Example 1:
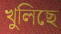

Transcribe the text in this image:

খুলিছে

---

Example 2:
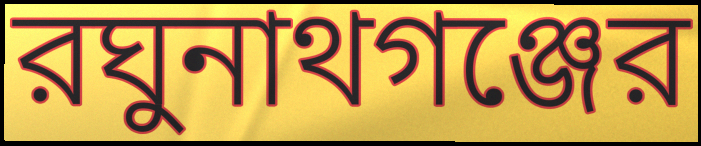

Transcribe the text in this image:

রঘুনাথগঞ্জের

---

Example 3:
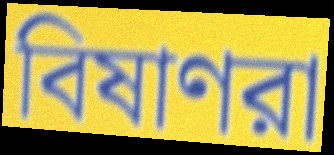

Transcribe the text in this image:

বিষাণরা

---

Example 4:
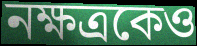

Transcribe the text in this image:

নক্ষত্রকেও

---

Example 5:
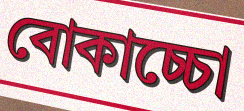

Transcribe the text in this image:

বোকাচ্চো